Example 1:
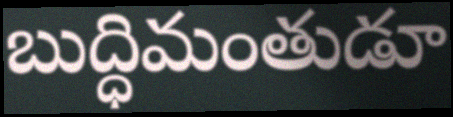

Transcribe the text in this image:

బుద్ధిమంతుడూ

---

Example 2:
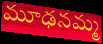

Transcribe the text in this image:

మూఢనమ్మ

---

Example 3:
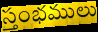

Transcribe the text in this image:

స్తంభములు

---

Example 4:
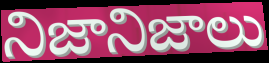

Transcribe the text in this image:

నిజానిజాలు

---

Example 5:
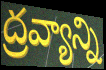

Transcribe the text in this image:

ద్రవ్యాన్ని